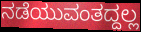
ನಡೆಯುವಂತದ್ದಲ್ಲ